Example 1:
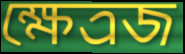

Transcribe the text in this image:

ক্ষেত্রজ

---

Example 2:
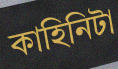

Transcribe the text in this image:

কাহিনিটা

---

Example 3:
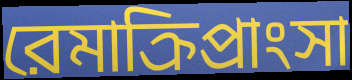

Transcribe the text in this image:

রেমাক্রিপ্রাংসা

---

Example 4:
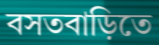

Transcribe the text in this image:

বসতবাড়িতে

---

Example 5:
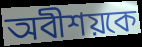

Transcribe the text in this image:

অবীশয়কে